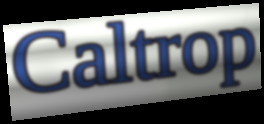
Caltrop